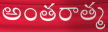
అంతరాత్మ